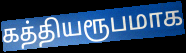
கத்தியரூபமாக